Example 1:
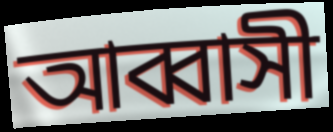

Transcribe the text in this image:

আব্বাসী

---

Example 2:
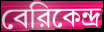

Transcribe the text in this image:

বেরিকেন্দ্র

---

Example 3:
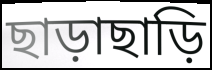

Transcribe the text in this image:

ছাড়াছাড়ি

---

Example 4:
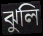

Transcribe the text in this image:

ঝুলি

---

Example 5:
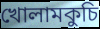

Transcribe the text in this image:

খোলামকুচি